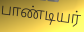
பாண்டியர்